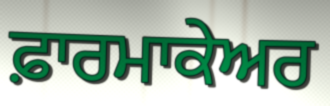
ਫ਼ਾਰਮਾਕੇਅਰ